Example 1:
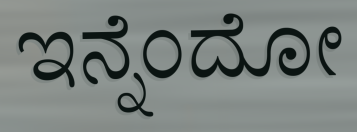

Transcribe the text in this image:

ಇನ್ನೆಂದೋ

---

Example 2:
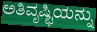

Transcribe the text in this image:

ಅತಿವೃಷ್ಟಿಯನ್ನು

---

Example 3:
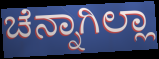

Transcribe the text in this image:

ಚೆನ್ನಾಗಿಲ್ಲಾ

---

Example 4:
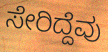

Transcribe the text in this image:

ಸೇರಿದ್ದೆವು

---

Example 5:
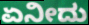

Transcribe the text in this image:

ಏನೀದು